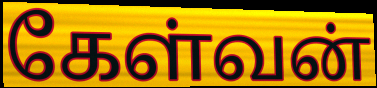
கேள்வன்